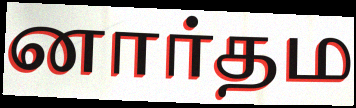
னார்தம